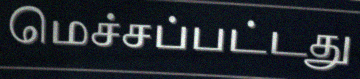
மெச்சப்பட்டது